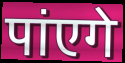
पांएगे